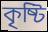
কৃষ্টি